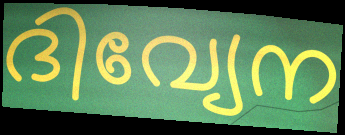
ദിവ്യേന